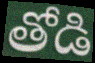
తోడి